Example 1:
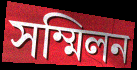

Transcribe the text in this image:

সম্মিলন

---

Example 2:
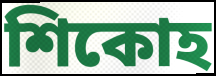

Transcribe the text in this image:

শিকোহ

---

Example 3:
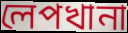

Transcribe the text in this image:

লেপখানা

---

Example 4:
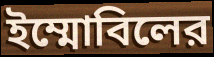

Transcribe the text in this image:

ইম্মোবিলের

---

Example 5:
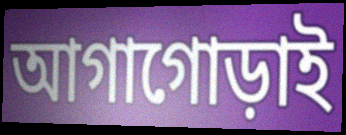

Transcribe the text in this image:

আগাগোড়াই